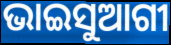
ଭାଇସୁଆଗୀ